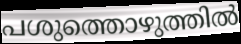
പശുത്തൊഴുത്തിൽ